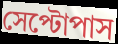
সেপ্টোপাস